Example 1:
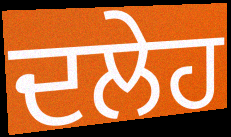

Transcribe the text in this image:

ਦਲੇਹ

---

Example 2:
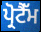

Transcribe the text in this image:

ਪ੍ਰੋਟੈੱਮ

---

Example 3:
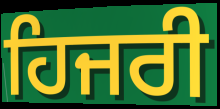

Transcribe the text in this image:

ਹਿਜਰੀ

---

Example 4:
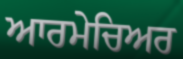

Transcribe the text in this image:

ਆਰਮੇਚਿਅਰ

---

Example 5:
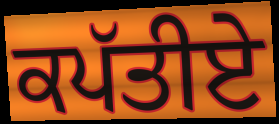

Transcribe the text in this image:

ਕਪੱਤੀਏ